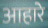
आहारे